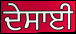
ਦੇਸਾਈ